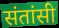
संतांसी